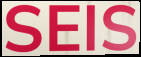
SEIS